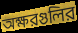
অক্ষরগুলির